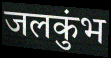
जलकुंभ